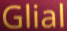
Glial